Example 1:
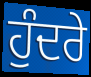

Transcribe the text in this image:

ਹੁੰਦਰੇ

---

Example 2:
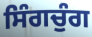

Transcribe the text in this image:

ਸਿੰਗਚੁੰਗ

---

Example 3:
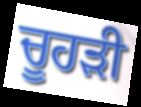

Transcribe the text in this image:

ਚੂਹੜੀ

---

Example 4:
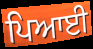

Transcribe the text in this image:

ਪਿਆਈ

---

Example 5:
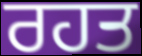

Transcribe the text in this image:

ਰਹਤ